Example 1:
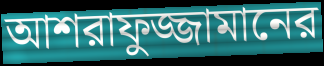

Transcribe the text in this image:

আশরাফুজ্জামানের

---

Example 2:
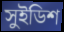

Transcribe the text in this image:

সুইডিশ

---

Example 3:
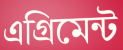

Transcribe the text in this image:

এগ্রিমেন্ট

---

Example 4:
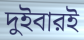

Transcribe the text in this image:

দুইবারই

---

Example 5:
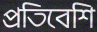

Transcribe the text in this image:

প্রতিবেশি